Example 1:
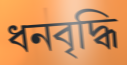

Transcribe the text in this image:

ধনবৃদ্ধি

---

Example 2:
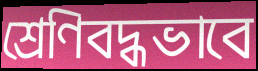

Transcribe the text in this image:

শ্রেণিবদ্ধভাবে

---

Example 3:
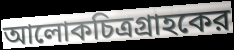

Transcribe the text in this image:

আলোকচিত্রগ্রাহকের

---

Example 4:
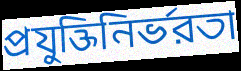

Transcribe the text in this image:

প্রযুক্তিনির্ভরতা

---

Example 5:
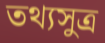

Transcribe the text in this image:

তথ্যসুত্র